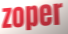
zoper